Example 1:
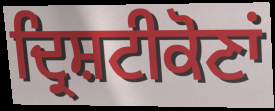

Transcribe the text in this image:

ਦ੍ਰਿਸ਼ਟੀਕੋਣਾਂ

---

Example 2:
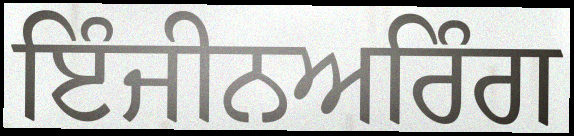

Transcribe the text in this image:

ਇੰਜੀਨਅਰਿੰਗ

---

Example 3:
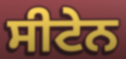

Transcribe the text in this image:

ਸੀਟੇਨ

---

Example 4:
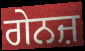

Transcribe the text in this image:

ਗੇਨਜ਼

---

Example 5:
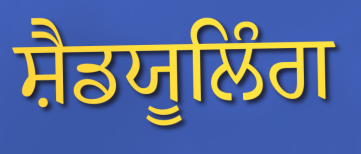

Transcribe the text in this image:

ਸ਼ੈਡਯੂਲਿੰਗ